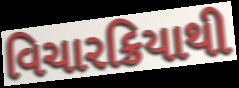
વિચારક્રિયાથી